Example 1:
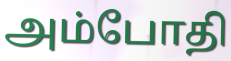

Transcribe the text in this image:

அம்போதி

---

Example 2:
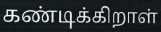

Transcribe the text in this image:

கண்டிக்கிறாள்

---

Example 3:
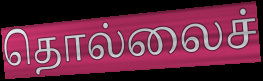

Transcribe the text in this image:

தொல்லைச்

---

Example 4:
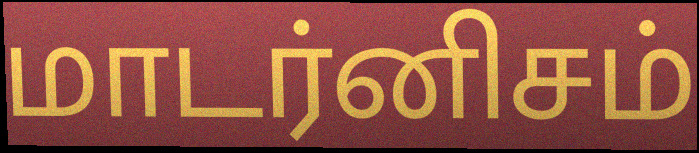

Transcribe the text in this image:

மாடர்னிசம்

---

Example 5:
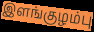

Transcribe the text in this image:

இளங்குழம்பு